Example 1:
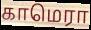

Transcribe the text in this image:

காமெரா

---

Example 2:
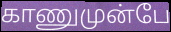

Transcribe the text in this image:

காணுமுன்பே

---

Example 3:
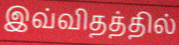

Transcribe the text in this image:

இவ்விதத்தில்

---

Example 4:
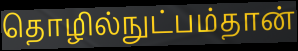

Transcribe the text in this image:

தொழில்நுட்பம்தான்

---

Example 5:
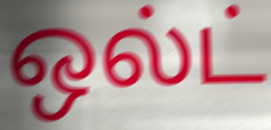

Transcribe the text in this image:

ஒல்ட்